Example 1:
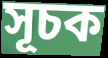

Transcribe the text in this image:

সূচক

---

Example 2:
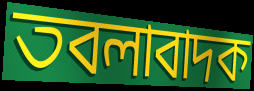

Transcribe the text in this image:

তবলাবাদক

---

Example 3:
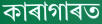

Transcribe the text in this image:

কাৰাগাৰত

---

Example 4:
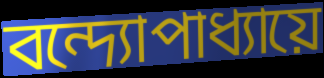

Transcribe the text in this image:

বন্দ্যোপাধ্যায়ে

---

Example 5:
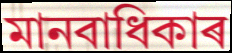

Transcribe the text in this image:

মানবাধিকাৰ